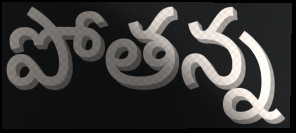
పోతన్న